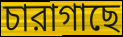
চারাগাছে